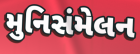
મુનિસંમેલન